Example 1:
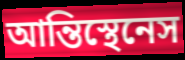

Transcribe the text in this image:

আন্তিস্থেনেস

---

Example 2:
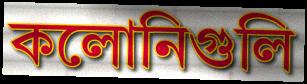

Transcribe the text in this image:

কলোনিগুলি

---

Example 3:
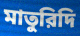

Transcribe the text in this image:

মাতুরিদি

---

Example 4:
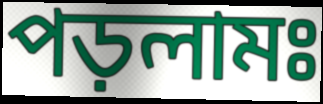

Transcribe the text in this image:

পড়লামঃ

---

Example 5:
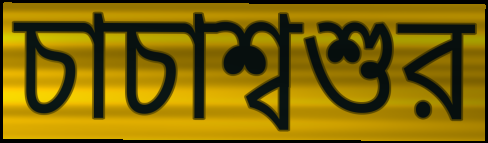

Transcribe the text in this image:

চাচাশ্বশুর